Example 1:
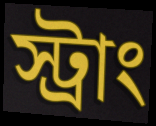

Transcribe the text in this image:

স্ট্রাং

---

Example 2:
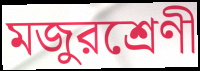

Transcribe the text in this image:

মজুরশ্রেণী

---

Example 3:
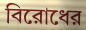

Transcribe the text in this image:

বিরোধের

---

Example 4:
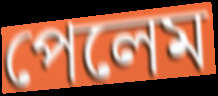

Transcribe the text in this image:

পেলেম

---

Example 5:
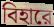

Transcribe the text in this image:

বিহারে